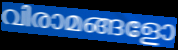
വിരാമങ്ങളോ